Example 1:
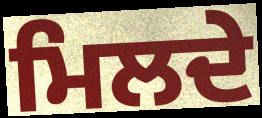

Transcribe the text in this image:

ਮਿਲਦੇ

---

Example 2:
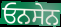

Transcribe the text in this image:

ਓਨਸੇਨ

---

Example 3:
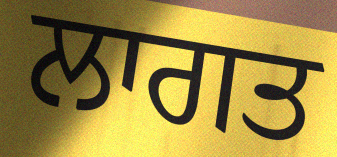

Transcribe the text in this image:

ਲਾਗਤ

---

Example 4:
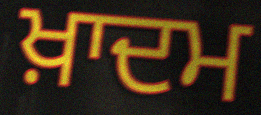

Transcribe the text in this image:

ਖ਼ਾਦਮ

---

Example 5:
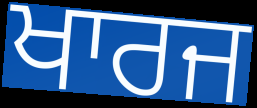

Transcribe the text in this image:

ਖਾਰਜ